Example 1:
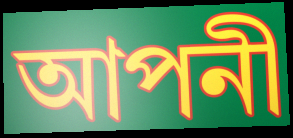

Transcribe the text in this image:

আপনী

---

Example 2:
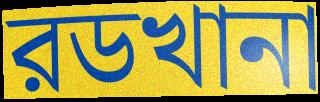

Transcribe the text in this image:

রডখানা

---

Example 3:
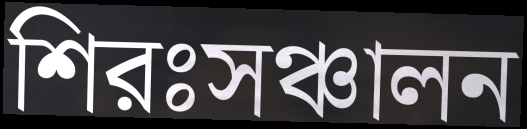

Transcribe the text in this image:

শিরঃসঞ্চালন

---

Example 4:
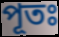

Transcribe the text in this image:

পূতঃ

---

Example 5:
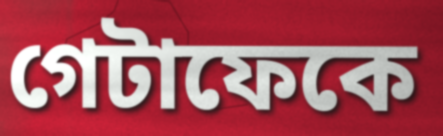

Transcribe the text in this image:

গেটাফেকে